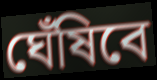
ঘেঁষিবে